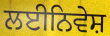
ਲਈਨਿਵੇਸ਼